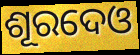
ଶୂରଦେଓ